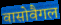
वासोवैगल